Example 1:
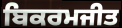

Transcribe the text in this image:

ਬਿਕਰਮਜੀਤ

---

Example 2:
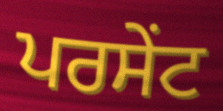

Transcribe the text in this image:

ਪਰਸੇੰਟ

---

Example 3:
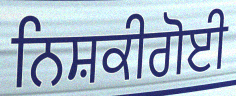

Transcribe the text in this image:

ਨਿਸ਼ਕੀਗੋਈ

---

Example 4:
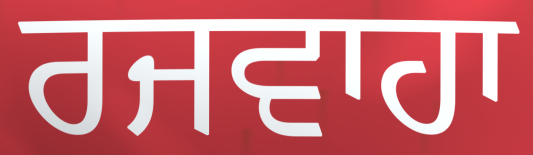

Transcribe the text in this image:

ਰਜਵਾਹਾ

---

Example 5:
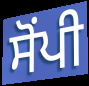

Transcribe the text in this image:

ਸੋੰਪੀ